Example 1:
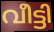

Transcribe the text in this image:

വീട്ടി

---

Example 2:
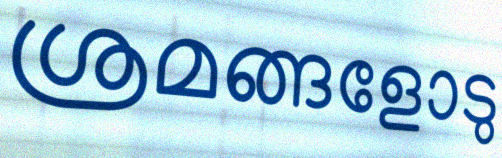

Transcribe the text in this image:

ശ്രമങ്ങളോടു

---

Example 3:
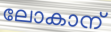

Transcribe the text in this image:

ലോകാന്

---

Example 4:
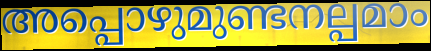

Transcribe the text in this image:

അപ്പൊഴുമുണ്ടനല്പമാം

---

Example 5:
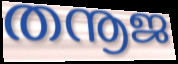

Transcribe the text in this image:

തനൂജ